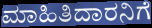
ಮಾಹಿತಿದಾರನಿಗೆ